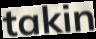
takin